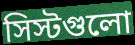
সিস্টগুলো